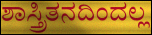
ಶಾಸ್ತ್ರಿತನದಿಂದಲ್ಲ